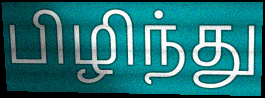
பிழிந்து